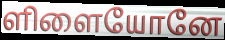
ளிளையோனே